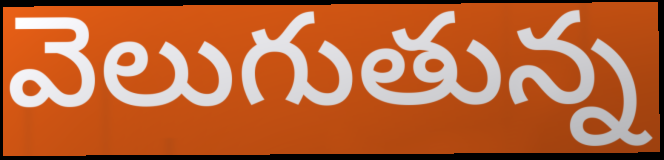
వెలుగుతున్న